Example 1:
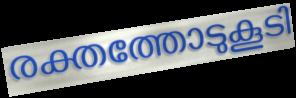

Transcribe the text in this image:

രക്തത്തോടുകൂടി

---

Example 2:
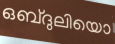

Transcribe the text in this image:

ഒബ്ദുലിയൊ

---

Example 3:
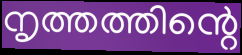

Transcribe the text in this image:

നൃത്തത്തിന്റെ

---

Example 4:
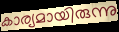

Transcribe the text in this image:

കാര്യമായിരുന്നു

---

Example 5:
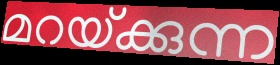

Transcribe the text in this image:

മറയ്‌ക്കുന്ന